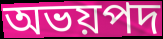
অভয়পদ